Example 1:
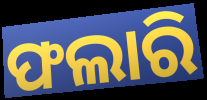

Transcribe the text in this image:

ଫଲାରି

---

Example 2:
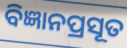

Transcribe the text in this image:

ବିଜ୍ଞାନପ୍ରସୂତ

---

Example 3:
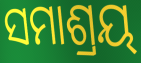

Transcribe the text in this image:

ସମାଶ୍ରୟ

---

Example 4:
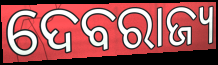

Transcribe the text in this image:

ଦେବରାଜ୍ୟ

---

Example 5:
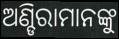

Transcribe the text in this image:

ଅଣ୍ଡିରାମାନଙ୍କୁ